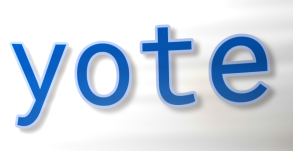
yote